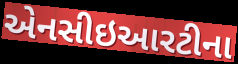
એનસીઇઆરટીના